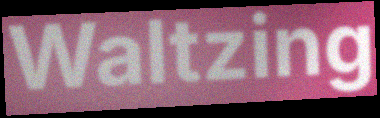
Waltzing